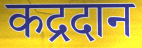
कद्रदान